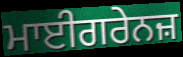
ਮਾਈਗਰੇਨਜ਼